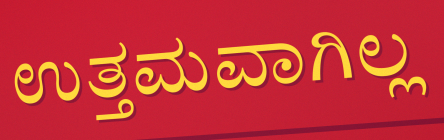
ಉತ್ತಮವಾಗಿಲ್ಲ